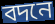
বদনে